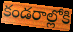
కండరాల్లోకి